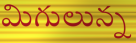
మిగులున్న